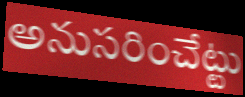
అనుసరించేట్టు